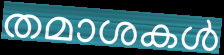
തമാശകൾ